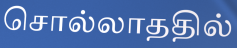
சொல்லாததில்